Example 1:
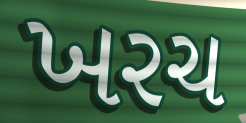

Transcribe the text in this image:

ખરચ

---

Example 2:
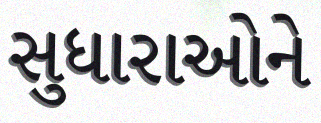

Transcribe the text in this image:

સુધારાઓને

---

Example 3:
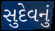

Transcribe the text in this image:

સુદેવનું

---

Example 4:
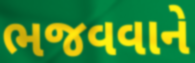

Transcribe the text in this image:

ભજવવાને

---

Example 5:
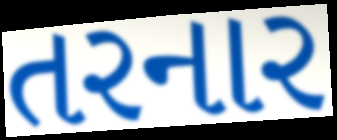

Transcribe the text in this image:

તરનાર